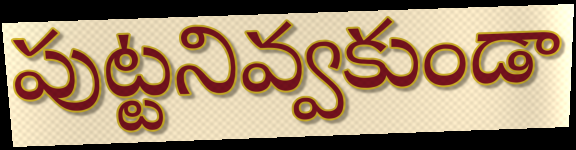
పుట్టనివ్వకుండా